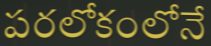
పరలోకంలోనే